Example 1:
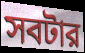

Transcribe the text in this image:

সবটার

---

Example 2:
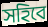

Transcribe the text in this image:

সহিবে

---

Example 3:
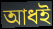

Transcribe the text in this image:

আধই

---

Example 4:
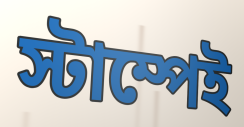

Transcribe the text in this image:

স্টাম্পেই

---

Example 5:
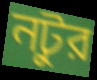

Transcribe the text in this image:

নটুর